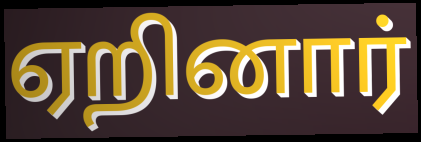
ஏறினார்